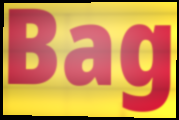
Bag